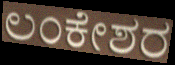
ಲಂಕೇಶರ